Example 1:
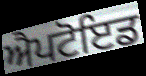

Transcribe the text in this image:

ਐਪਟੋਇਡ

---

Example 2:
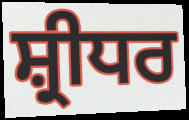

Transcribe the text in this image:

ਸ਼੍ਰੀਧਰ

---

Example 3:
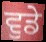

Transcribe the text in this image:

ਵੁਡੇ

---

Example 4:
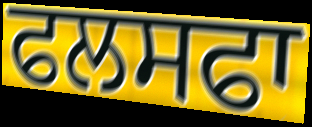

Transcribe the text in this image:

ਫਲਸਫਾ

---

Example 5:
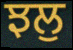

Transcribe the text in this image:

ਝਲੁ